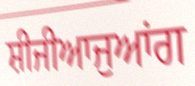
ਸ਼ੀਜੀਆਜੁਆਂਗ